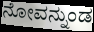
ನೋವನ್ನುಂಡ